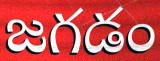
జగడం